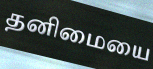
தனிமையை